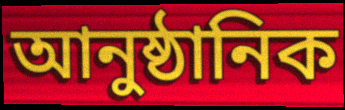
আনুষ্ঠানিক